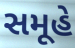
સમૂહે